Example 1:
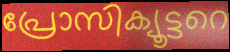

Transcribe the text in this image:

പ്രോസിക്യൂട്ടറെ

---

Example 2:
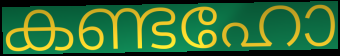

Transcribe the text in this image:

കണ്ടഹോ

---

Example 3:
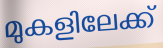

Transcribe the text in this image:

മുകളിലേക്ക്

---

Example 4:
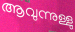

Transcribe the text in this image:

ആവുന്നുള്ളു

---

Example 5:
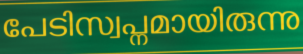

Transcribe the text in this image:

പേടിസ്വപ്നമായിരുന്നു